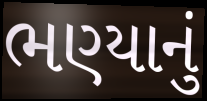
ભણ્યાનું